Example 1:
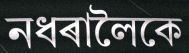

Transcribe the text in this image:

নধৰালৈকে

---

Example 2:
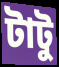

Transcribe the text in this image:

টাটু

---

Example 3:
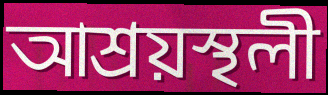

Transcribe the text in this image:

আশ্ৰয়স্থলী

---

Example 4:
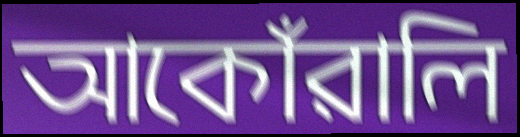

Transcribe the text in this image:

আকোঁৱালি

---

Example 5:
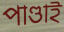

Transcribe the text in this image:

পাণ্ডাই